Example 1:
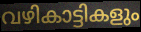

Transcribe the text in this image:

വഴികാട്ടികളും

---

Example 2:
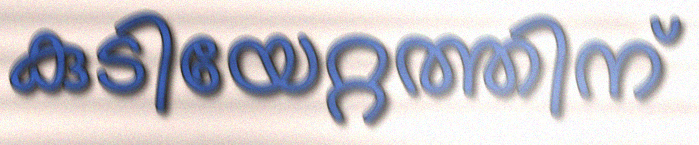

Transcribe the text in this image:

കുടിയേറ്റത്തിന്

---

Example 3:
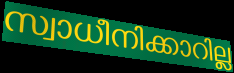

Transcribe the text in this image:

സ്വാധീനിക്കാറില്ല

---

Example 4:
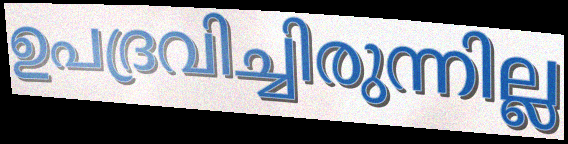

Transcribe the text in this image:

ഉപദ്രവിച്ചിരുന്നില്ല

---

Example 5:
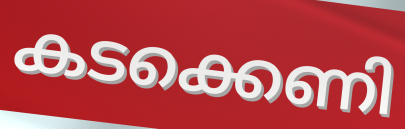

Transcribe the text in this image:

കടക്കെണി